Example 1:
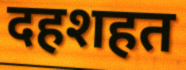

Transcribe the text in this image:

दहशहत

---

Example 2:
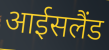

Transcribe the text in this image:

आईसलैंड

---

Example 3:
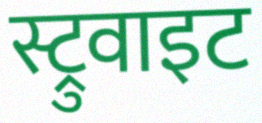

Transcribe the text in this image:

स्ट्रुवाइट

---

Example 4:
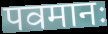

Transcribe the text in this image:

पवमानः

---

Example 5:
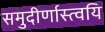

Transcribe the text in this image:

समुदीर्णास्त्वयि